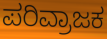
ಪರಿವ್ರಾಜಕ